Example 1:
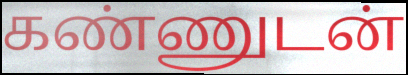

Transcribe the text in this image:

கண்ணுடன்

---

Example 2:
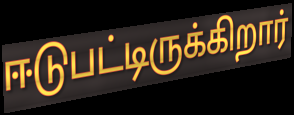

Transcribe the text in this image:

ஈடுபட்டிருக்கிறார்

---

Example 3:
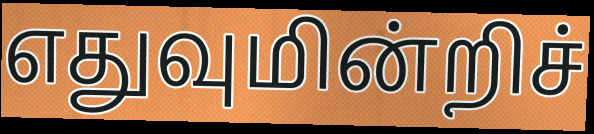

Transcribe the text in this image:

எதுவுமின்றிச்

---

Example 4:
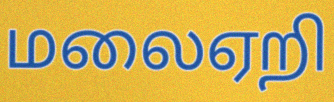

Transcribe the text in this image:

மலைஏறி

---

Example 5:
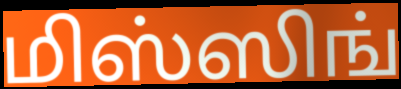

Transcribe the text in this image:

மிஸ்ஸிங்